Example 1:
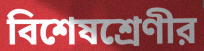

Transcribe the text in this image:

বিশেষশ্রেণীর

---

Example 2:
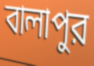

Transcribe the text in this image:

বালাপুর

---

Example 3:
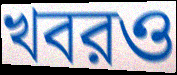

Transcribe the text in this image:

খবরও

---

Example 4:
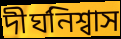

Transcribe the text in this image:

দীর্ঘনিশ্বাস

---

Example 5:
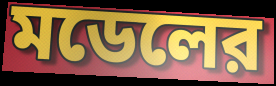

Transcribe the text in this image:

মডেলের